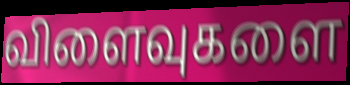
விளைவுகளை